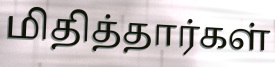
மிதித்தார்கள்